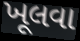
ખૂલવા